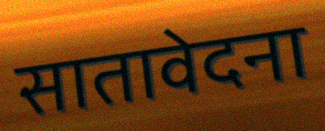
सातावेदना